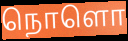
நொளொ